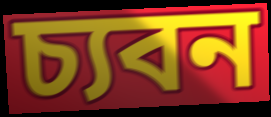
চ্যবন